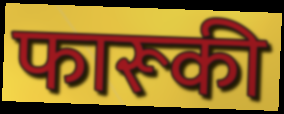
फारूकी